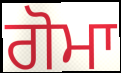
ਗੋਮਾ